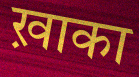
ख़ाका